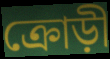
ক্রোড়ী